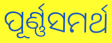
ପୂର୍ଣ୍ଣସମର୍ଥ